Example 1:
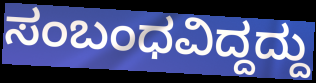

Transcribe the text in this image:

ಸಂಬಂಧವಿದ್ದದ್ದು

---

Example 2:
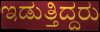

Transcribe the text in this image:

ಇಡುತ್ತಿದ್ದರು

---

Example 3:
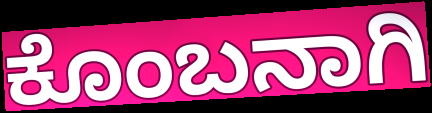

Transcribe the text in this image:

ಕೊಂಬನಾಗಿ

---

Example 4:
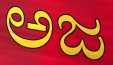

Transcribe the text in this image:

ಅಜ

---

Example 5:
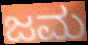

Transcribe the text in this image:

ಜಮ